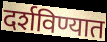
दर्शविण्यात